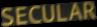
SECULAR